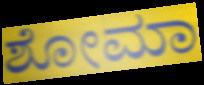
ಶೋಮಾ